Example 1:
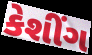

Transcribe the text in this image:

કેશીંગ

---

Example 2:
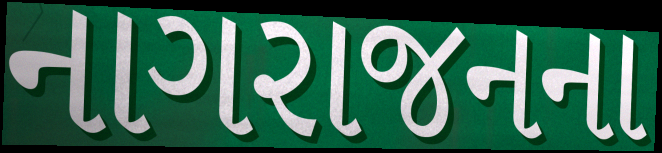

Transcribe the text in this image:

નાગરાજનના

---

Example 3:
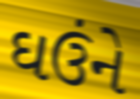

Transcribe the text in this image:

ઘઉંને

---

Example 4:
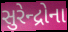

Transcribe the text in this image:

સુરેન્દ્રોના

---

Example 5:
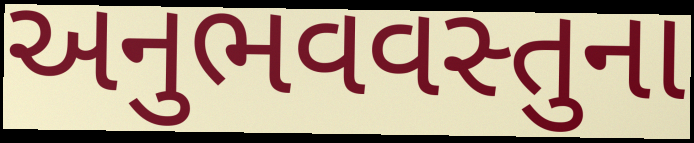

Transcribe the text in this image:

અનુભવવસ્તુના